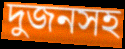
দুজনসহ